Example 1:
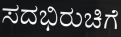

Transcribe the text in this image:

ಸದಭಿರುಚಿಗೆ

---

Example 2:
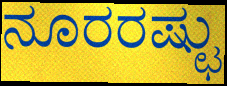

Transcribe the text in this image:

ನೂರರಷ್ಟು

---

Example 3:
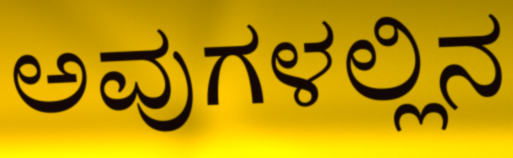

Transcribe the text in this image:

ಅವುಗಳಲ್ಲಿನ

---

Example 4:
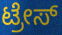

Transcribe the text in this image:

ಟ್ರೇಸ್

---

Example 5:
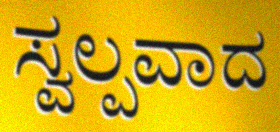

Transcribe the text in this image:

ಸ್ವಲ್ಪವಾದ